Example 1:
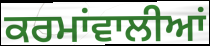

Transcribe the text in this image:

ਕਰਮਾਂਵਾਲੀਆਂ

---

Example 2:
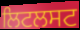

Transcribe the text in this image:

ਲਿਟਲਸਟ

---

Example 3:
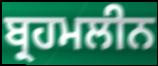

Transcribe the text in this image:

ਬ੍ਰਹਮਲੀਨ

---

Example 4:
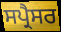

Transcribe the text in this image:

ਸਪ੍ਰੈਸਰ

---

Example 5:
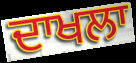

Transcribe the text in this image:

ਦਾਖਲਾ